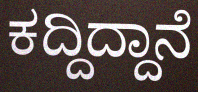
ಕದ್ದಿದ್ದಾನೆ